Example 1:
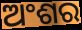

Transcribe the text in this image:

ଅଂଶର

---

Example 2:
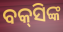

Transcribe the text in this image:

ବକ୍‌ସିଙ୍କ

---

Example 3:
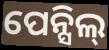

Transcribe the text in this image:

ପେନ୍ସିଲ୍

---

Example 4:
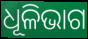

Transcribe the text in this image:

ଧୂଳିଭାଗ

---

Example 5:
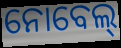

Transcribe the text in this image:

ନୋବେଲ୍